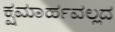
ಕ್ಷಮಾರ್ಹವಲ್ಲದ